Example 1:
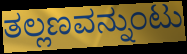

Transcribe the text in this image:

ತಲ್ಲಣವನ್ನುಂಟು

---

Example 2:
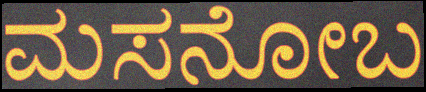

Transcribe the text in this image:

ಮಸನೋಬ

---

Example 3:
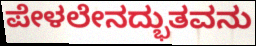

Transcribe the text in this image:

ಪೇಳಲೇನದ್ಭುತವನು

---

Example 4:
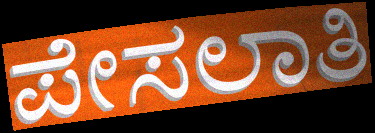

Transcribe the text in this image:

ಪೇಸಲಾತಿ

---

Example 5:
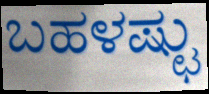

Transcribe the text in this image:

ಬಹಳಷ್ಟು